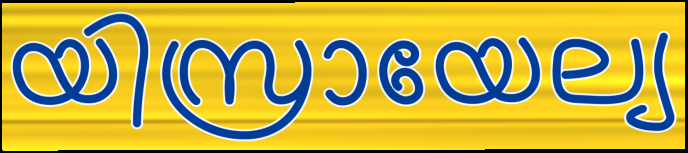
യിസ്രായേല്യ